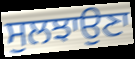
ਸੁਲਝਾਉਣਾ